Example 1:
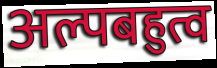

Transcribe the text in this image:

अल्पबहुत्व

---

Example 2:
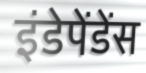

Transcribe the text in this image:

इंडेपेंडेंस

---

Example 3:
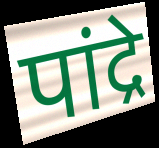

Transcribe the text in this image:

पांद्रे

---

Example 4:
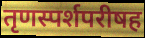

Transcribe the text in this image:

तृणस्पर्शपरीषह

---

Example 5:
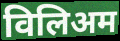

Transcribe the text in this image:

विलिअम